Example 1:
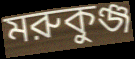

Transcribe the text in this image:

মরুকুঞ্জ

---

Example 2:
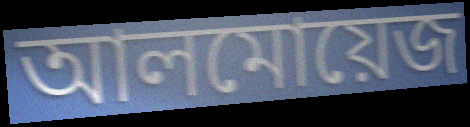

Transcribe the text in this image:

আলমোয়েজ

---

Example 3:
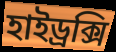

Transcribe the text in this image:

হাইড্রক্সি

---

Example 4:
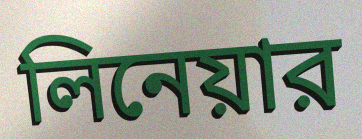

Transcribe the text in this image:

লিনেয়ার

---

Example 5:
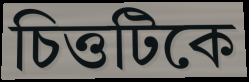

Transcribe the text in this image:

চিত্তটিকে